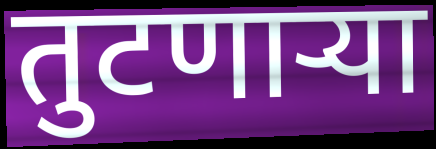
तुटणार्‍या